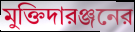
মুক্তিদারঞ্জনের